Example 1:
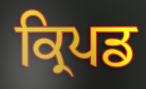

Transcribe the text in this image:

ਕ੍ਰਿਪਡ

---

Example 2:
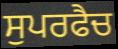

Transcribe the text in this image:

ਸੁਪਰਫੈਚ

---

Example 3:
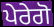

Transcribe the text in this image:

ਪੇਰੇਗੋ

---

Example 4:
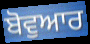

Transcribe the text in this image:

ਬੋਵੁਆਰ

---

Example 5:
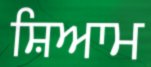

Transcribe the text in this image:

ਸ਼ਿਆਮ